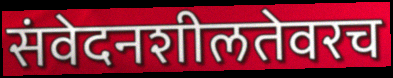
संवेदनशीलतेवरच